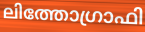
ലിത്തോഗ്രാഫി